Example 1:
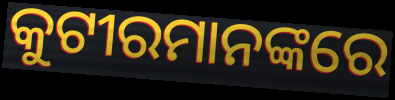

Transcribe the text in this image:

କୁଟୀରମାନଙ୍କରେ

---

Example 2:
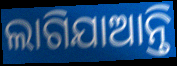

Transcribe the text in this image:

ଲାଗିଯାଆନ୍ତି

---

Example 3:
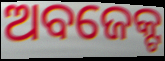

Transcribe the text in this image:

ଅବଜେକ୍ଟ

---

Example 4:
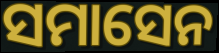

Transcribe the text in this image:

ସମାସେନ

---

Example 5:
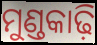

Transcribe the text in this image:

ମୁଣ୍ଡକାଢ଼ି